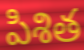
పిశిత